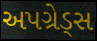
અપગ્રેડ્સ